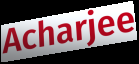
Acharjee